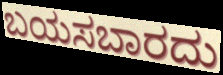
ಬಯಸಬಾರದು